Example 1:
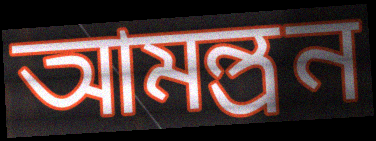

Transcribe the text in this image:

আমন্ত্রন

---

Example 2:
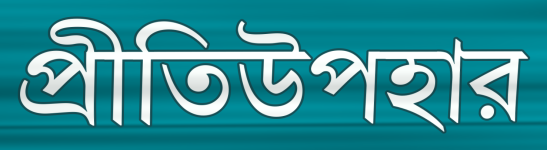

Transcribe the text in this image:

প্রীতিউপহার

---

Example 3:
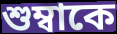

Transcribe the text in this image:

শুম্বাকে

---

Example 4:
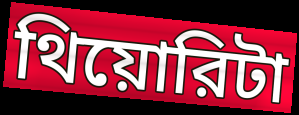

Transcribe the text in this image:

থিয়োরিটা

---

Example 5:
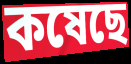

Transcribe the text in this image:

কষেছে